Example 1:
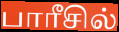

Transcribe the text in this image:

பாரீசில்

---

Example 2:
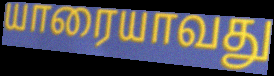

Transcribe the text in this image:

யாரையாவது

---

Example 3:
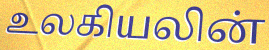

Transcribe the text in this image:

உலகியலின்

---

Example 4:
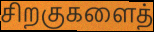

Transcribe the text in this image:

சிறகுகளைத்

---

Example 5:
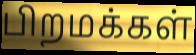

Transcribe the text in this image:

பிறமக்கள்